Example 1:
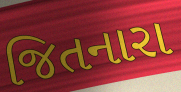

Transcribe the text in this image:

જિતનારા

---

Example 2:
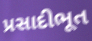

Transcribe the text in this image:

પ્રસાદીભૂત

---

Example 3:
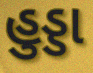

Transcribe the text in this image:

હુડ્ડા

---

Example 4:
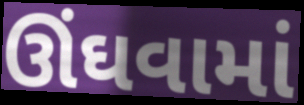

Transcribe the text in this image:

ઊંઘવામાં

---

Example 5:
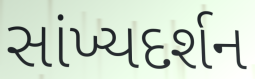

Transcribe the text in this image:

સાંખ્યદર્શન